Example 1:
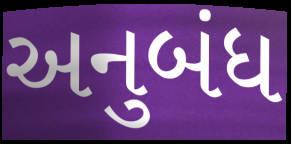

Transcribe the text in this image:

અનુબંધ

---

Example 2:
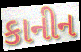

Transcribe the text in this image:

કાનીન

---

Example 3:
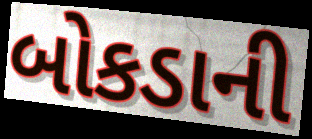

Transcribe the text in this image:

બોકડાની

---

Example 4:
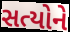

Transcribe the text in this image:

સત્યોને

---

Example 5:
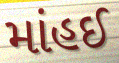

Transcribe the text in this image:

માંહઈ